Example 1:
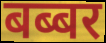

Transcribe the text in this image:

बब्बर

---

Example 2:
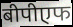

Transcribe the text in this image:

बीपीएफ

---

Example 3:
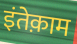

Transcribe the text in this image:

इंतेक़ाम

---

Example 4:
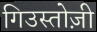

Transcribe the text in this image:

गिउस्तोज़ी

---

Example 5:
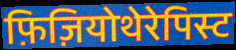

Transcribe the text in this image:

फ़िज़ियोथेरेपिस्ट